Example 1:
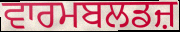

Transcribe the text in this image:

ਵਾਰਮਬਲਡਜ਼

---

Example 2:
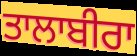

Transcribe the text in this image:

ਤਾਲਾਬੀਰਾ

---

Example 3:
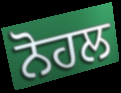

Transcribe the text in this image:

ਨੋਹਲ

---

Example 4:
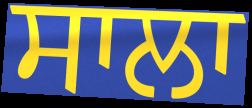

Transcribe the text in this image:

ਸਾਲਾ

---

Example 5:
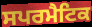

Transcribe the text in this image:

ਸਪਰਮੈਟਿਕ